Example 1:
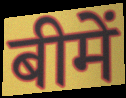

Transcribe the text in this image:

बीमें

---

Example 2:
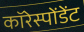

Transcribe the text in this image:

कॉरेस्पोंडेंट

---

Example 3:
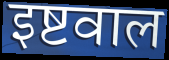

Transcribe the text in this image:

इष्टवाल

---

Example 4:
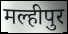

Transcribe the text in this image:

मल्हीपुर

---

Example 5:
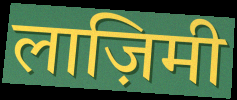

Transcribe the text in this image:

लाज़िमी